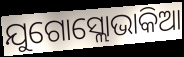
ଯୁଗୋସ୍ଲୋଭାକିଆ